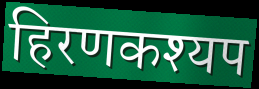
हिरणकश्यप